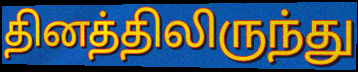
தினத்திலிருந்து